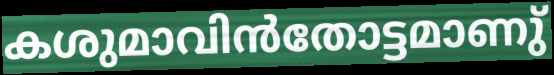
കശുമാവിൻതോട്ടമാണു്